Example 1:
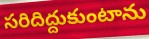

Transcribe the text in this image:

సరిదిద్దుకుంటాను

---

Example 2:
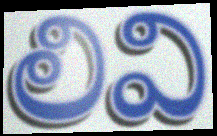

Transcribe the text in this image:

లివి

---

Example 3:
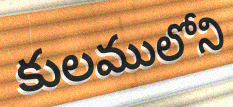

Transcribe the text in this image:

కులములోని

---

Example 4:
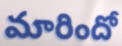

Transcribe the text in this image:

మారిందో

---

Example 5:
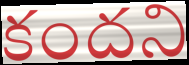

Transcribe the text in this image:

కందని